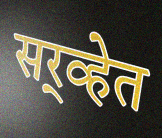
सर्व्हेत